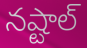
నష్టాల్